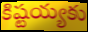
కిష్టయ్యకు